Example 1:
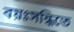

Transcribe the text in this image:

বয়ঃসন্ধিতে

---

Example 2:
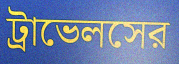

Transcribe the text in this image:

ট্রাভেলসের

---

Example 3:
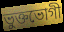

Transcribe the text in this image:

ভুক্তভোগী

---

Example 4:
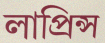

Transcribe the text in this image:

লাপ্রিন্স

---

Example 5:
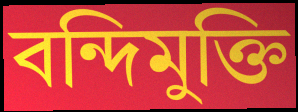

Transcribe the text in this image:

বন্দিমুক্তি